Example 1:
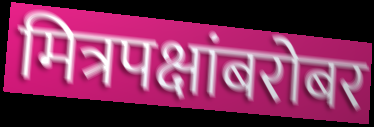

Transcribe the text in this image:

मित्रपक्षांबरोबर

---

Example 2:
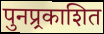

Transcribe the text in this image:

पुनप्र्रकाशित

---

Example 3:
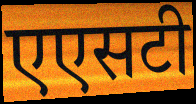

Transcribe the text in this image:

एएसटी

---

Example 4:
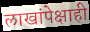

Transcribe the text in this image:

लाखांपेक्षाही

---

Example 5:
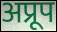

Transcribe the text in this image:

अप्रूप